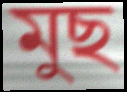
মুছ